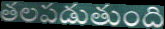
తలపడుతుంది